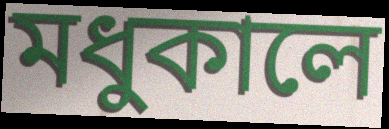
মধুকালে